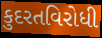
કુદરતવિરોધી